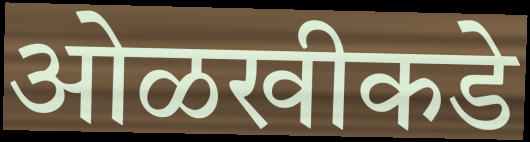
ओळखीकडे